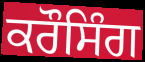
ਕਰੌਸਿੰਗ